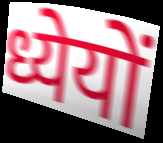
ध्येयों